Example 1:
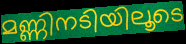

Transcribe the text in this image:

മണ്ണിനടിയിലൂടെ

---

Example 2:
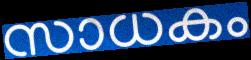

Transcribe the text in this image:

സാധകം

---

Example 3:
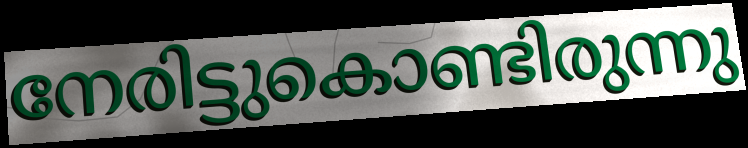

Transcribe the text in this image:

നേരിട്ടുകൊണ്ടിരുന്നു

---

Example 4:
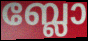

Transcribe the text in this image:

ബ്ലോ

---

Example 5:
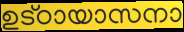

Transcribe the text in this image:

ഉട്ഠായാസനാ